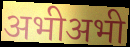
अभीअभी